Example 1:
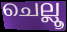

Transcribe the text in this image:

ചെല്ലൂ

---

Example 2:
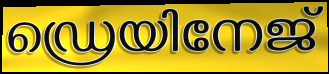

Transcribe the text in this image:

ഡ്രെയിനേജ്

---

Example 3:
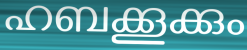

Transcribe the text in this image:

ഹബക്കൂക്കും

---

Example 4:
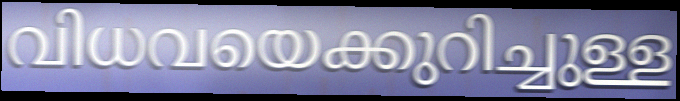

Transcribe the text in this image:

വിധവയെക്കുറിച്ചുള്ള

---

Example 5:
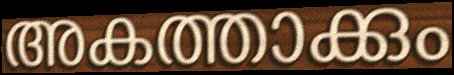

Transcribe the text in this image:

അകത്താക്കും